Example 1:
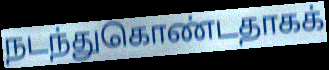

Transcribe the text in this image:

நடந்துகொண்டதாகக்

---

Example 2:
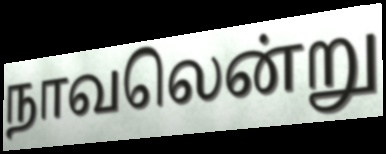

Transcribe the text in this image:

நாவலென்று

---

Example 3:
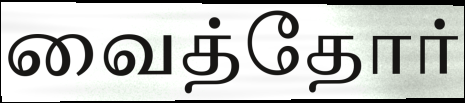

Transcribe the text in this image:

வைத்தோர்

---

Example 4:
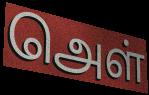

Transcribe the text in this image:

அெள்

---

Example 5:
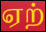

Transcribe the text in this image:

ஏற்